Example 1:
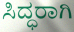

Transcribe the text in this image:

ಸಿದ್ಧರಾಗಿ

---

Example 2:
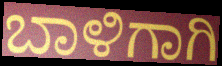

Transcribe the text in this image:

ಬಾಳಿಗಾಗಿ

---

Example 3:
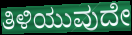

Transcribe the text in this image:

ತಿಳಿಯುವುದೇ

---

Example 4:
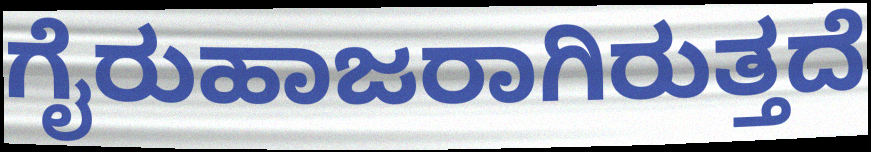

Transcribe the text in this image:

ಗೈರುಹಾಜರಾಗಿರುತ್ತದೆ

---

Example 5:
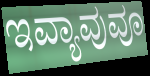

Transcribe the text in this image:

ಇವ್ಯಾವುವೂ